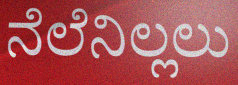
ನೆಲೆನಿಲ್ಲಲು